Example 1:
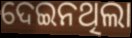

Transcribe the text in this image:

ଦେଇନଥିଲା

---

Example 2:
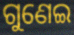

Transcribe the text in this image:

ଗୁଣେଇ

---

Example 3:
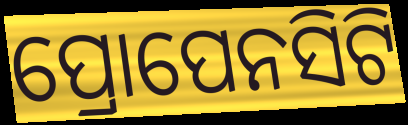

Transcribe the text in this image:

ପ୍ରୋପେନସିଟି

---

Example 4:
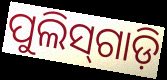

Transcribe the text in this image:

ପୁଲିସ୍‌ଗାଡ଼ି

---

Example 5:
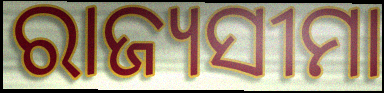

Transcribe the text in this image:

ରାଜ୍ୟସୀମା